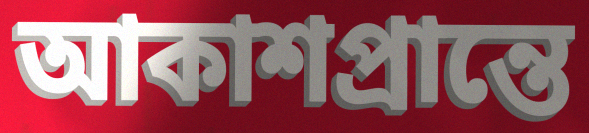
আকাশপ্রান্তে